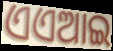
ଏଏଆଇ